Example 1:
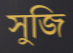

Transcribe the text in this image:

সুজি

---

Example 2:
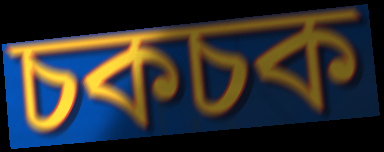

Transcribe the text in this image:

চকচক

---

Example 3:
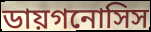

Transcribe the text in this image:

ডায়গনোসিস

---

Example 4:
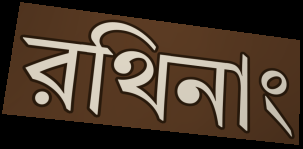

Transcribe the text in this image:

রথিনাং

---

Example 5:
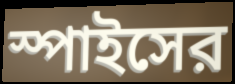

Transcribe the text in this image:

স্পাইসের